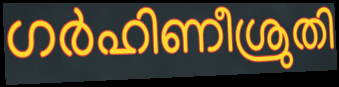
ഗർഹിണീശ്രുതി